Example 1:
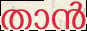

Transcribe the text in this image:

താൻ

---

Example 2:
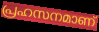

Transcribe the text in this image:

പ്രഹസനമാണ്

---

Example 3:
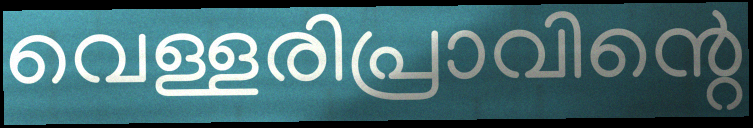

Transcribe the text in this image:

വെള്ളരിപ്രാവിന്റെ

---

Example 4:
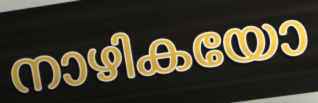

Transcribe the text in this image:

നാഴികയോ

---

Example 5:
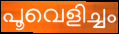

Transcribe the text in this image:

പൂവെളിച്ചം